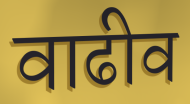
वाढीव